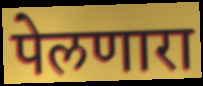
पेलणारा